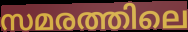
സമരത്തിലെ